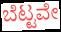
ಬೆಟ್ಟವೇ